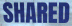
SHARED